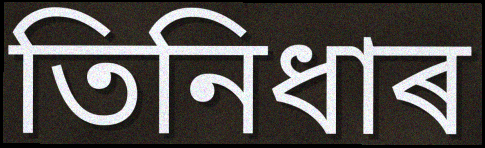
তিনিধাৰ